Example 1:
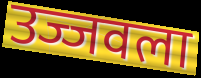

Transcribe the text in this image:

उज्‍जवला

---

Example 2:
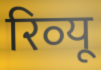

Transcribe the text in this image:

रिव्‍यू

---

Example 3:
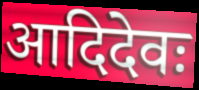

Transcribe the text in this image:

आदिदेवः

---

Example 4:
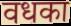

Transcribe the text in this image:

वधका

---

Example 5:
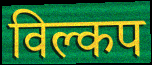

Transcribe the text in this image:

विल्कप